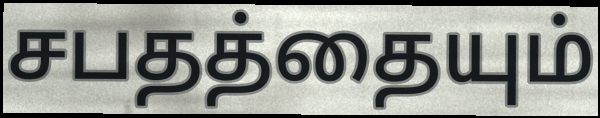
சபதத்தையும்